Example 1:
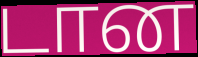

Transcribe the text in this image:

டான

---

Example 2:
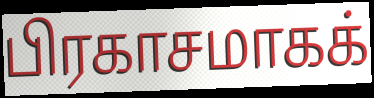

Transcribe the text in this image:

பிரகாசமாகக்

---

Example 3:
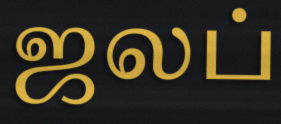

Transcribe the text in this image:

ஜலப்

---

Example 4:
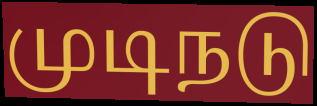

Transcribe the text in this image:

முடிநடு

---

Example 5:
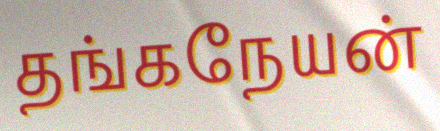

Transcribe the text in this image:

தங்கநேயன்